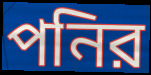
পনির